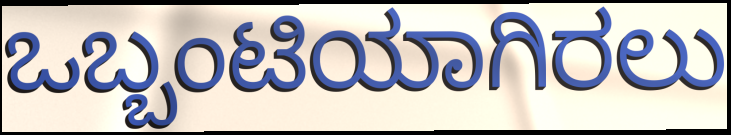
ಒಬ್ಬಂಟಿಯಾಗಿರಲು